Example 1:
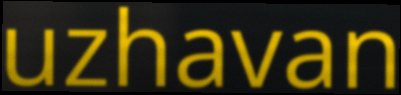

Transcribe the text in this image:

uzhavan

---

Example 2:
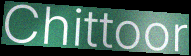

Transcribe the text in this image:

Chittoor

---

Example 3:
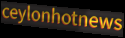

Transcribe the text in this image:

ceylonhotnews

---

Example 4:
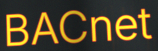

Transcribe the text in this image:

BACnet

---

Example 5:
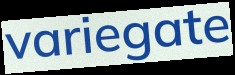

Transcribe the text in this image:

variegate